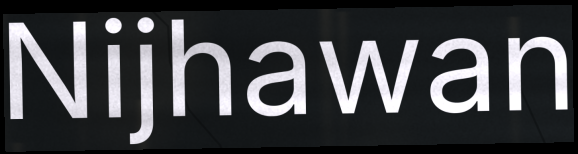
Nijhawan